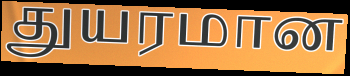
துயரமான